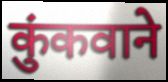
कुंकवाने